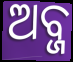
ଅବ୍ଜ